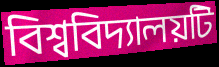
বিশ্ববিদ্যালয়টি